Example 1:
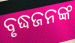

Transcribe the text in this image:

ବୃଦ୍ଧଜନଙ୍କ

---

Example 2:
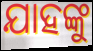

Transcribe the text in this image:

ଯାହଙ୍କୁ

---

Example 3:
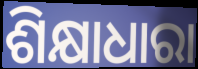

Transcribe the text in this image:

ଶିକ୍ଷାଧାରା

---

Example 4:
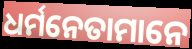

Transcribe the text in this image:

ଧର୍ମନେତାମାନେ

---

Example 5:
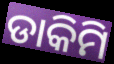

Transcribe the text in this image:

ଡାକିମି